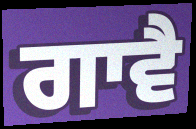
ਗਾਵੈ